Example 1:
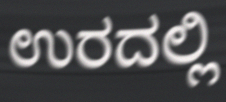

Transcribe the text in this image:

ಉರದಲ್ಲಿ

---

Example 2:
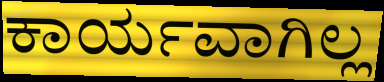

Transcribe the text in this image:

ಕಾರ್ಯವಾಗಿಲ್ಲ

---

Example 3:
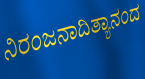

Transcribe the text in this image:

ನಿರಂಜನಾದಿತ್ಯಾನಂದ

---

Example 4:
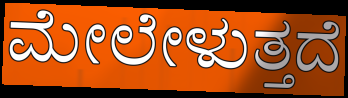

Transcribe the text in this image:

ಮೇಲೇಳುತ್ತದೆ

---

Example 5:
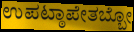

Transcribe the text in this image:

ಉಪಟ್ಠಾಪೇತಬ್ಬೋ